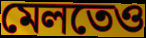
মেলতেও